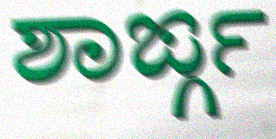
ಶಾರ್ಙ್ಗ